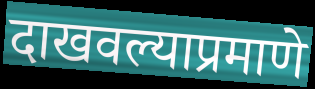
दाखवल्याप्रमाणे